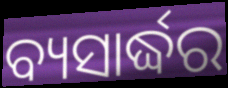
ବ୍ୟସାର୍ଦ୍ଧର